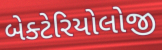
બેક્ટેરિયોલોજી